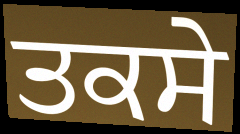
ਤਕਸੇ